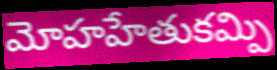
మోహహేతుకమ్పి